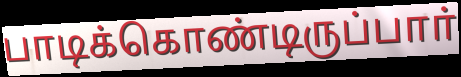
பாடிக்கொண்டிருப்பார்